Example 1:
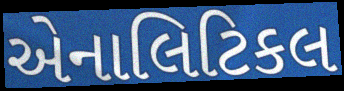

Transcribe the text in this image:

એનાલિટિકલ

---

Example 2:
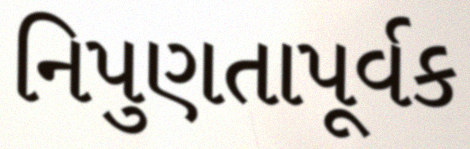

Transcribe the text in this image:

નિપુણતાપૂર્વક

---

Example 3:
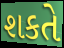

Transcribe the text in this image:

શકતે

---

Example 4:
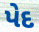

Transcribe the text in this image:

પેદ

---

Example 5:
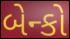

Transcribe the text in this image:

બેન્કો